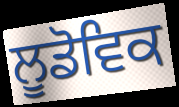
ਲੂਡੋਵਿਕ